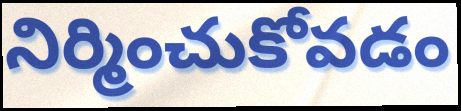
నిర్మించుకోవడం